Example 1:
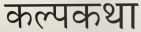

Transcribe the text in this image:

कल्पकथा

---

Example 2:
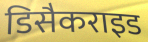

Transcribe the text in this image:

डिसैकराइड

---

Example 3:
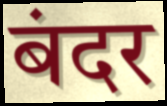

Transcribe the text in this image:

बंदर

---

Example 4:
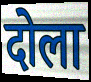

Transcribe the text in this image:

दोला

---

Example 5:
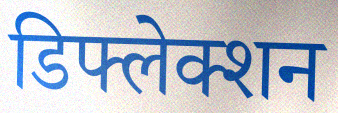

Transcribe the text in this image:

डिफ्लेक्शन